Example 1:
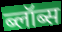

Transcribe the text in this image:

ब्लॉब्स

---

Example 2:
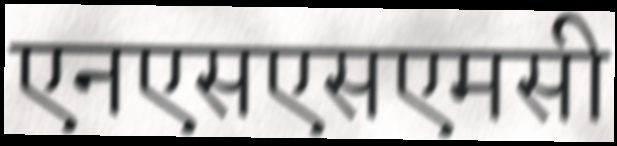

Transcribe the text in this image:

एनएसएसएमसी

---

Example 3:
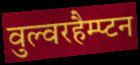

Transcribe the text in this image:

वुल्वरहैम्प्टन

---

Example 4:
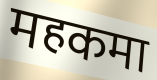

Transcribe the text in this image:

महकमा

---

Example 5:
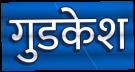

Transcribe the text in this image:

गुडकेश